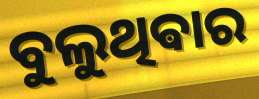
ବୁଲୁଥିଵାର